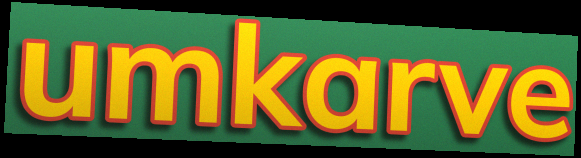
umkarve